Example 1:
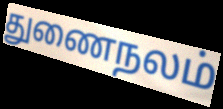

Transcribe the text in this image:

துணைநலம்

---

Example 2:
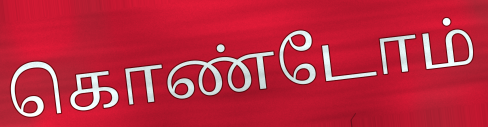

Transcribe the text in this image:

கொண்டோம்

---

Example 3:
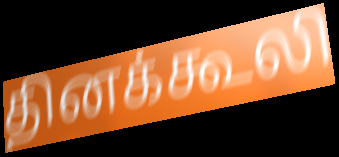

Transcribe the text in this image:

தினக்கூலி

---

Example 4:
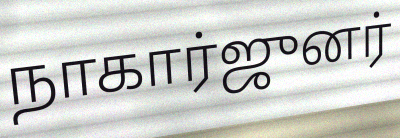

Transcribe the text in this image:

நாகார்ஜுனர்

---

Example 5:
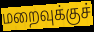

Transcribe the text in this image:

மறைவுக்குச்